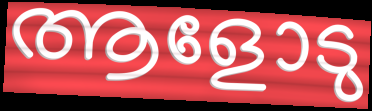
ആളോടു